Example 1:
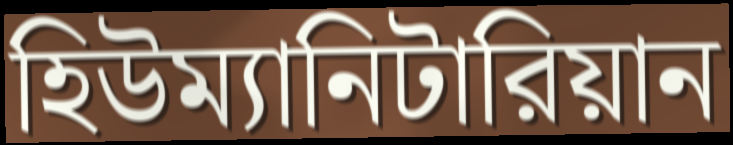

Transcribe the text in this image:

হিউম্যানিটারিয়ান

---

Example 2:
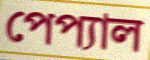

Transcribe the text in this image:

পেপ্যাল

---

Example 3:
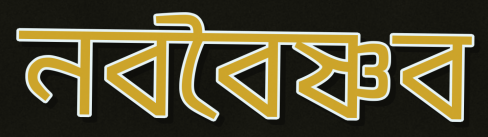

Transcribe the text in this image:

নববৈষ্ণব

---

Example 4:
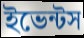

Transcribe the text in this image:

ইভেন্টস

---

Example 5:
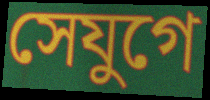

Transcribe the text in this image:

সেযুগে